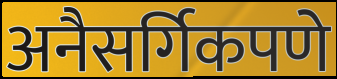
अनैसर्गिकपणे